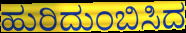
ಹುರಿದುಂಬಿಸಿದ